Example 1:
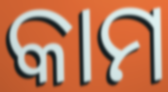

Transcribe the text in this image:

କାମ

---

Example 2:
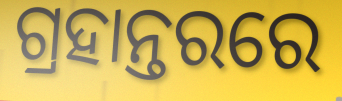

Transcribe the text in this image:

ଗ୍ରହାନ୍ତରରେ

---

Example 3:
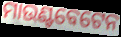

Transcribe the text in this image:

ମାଉଣ୍ଟବେଟେନ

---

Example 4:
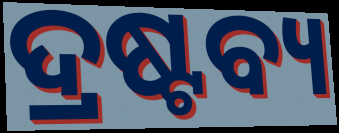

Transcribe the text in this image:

ଦ୍ରଷ୍ଟବ୍ୟ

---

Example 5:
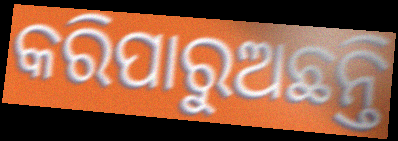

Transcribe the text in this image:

କରିପାରୁଅଛନ୍ତି